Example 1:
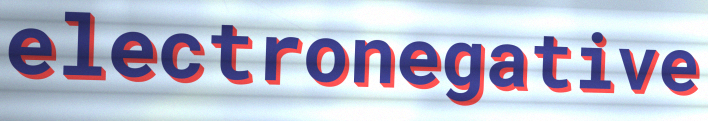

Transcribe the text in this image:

electronegative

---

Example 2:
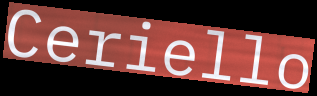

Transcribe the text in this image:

Ceriello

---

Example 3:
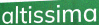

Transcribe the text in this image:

altissima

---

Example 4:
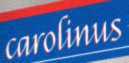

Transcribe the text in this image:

carolinus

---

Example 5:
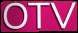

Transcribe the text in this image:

OTV